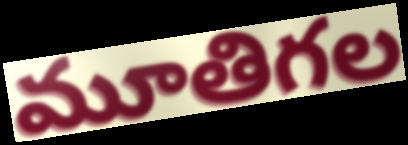
మూతిగల